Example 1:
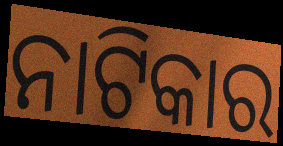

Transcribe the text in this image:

ନାଟିକାର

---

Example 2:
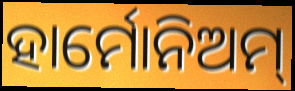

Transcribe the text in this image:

ହାର୍ମୋନିଅମ୍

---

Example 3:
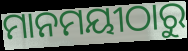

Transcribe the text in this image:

ମାନମୟୀଠାରୁ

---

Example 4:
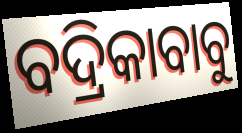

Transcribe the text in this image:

ବଦ୍ରିକାବାବୁ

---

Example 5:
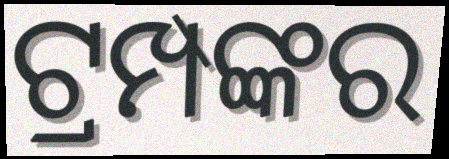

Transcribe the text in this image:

ଟ୍ରମ୍ପଙ୍କର